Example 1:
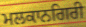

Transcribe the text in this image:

ਮਲਕਾਨਗਿਰੀ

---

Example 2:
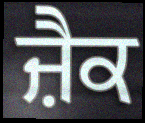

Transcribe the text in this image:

ਜ਼ੈਕ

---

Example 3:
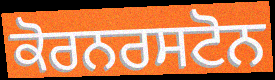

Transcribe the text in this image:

ਕੋਰਨਰਸਟੋਨ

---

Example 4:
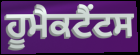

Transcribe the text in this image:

ਹੂਮੈਕਟੈਂਟਸ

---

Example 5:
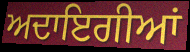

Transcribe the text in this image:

ਅਦਾਇਗੀਆਂ